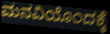
ಮನವಿಯೊಂದಕ್ಕೆ